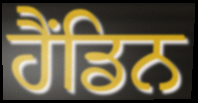
ਹੈਂਡਿਨ